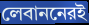
লেবাননেরই